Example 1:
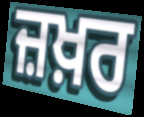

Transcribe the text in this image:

ਜ਼ਖ਼ਰ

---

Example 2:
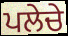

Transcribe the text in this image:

ਪਲੇਚੇ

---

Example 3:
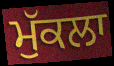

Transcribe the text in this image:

ਮੁੱਕਲਾ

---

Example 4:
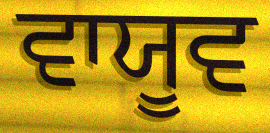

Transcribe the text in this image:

ਵਾਯੂਵ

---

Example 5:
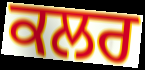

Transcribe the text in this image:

ਕਲਰ